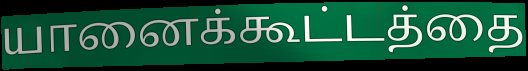
யானைக்கூட்டத்தை